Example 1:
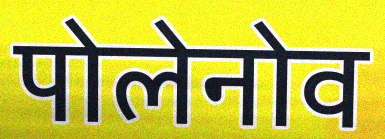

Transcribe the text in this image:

पोलेनोव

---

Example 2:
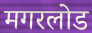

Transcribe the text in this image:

मगरलोड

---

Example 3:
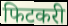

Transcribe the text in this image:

फिटकरी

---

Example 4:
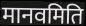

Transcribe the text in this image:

मानवमिति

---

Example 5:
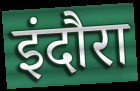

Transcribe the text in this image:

इंदौरा